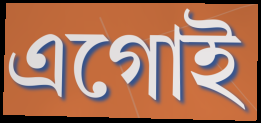
এগোই